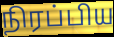
நிரப்பிய